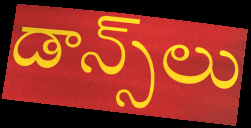
డాన్స్‌లు